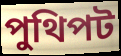
পুথিপট